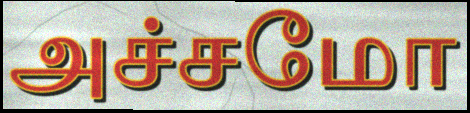
அச்சமோ